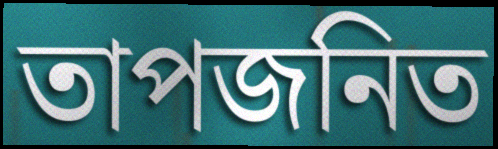
তাপজনিত